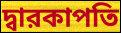
দ্বারকাপতি